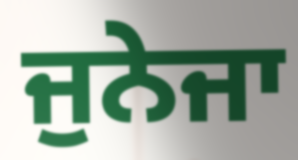
ਜੁਨੇਜਾ